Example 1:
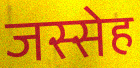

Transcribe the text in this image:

जस्सेह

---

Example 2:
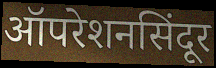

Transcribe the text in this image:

ऑपरेशनसिंदूर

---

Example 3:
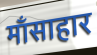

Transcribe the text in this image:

माँसाहार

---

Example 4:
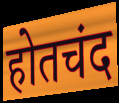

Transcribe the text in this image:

होतचंद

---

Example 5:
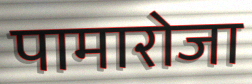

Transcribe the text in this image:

पामारोजा